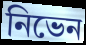
নিভেন